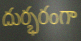
దుర్భరంగా